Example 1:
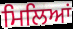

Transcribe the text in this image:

ਮਿਲਿਆਂ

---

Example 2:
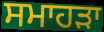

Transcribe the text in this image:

ਸਮਾਹੜਾ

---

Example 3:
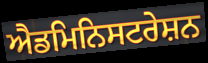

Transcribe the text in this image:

ਐਡਮਿਨਿਸਟਰੇਸ਼ਨ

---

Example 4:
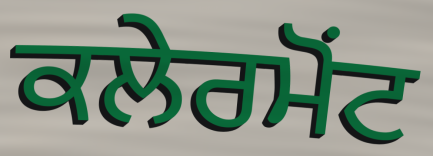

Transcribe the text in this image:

ਕਲੇਰਮੋਂਟ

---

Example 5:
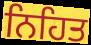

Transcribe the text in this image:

ਨਿਹਿਤ